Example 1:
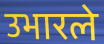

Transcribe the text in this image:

उभारले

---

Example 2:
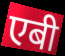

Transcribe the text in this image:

एबी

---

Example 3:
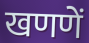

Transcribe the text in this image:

खणणें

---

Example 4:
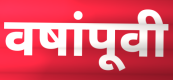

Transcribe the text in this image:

वषांपूवी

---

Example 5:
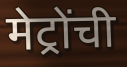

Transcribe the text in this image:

मेट्रोंची